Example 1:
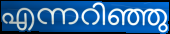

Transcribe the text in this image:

എന്നറിഞ്ഞു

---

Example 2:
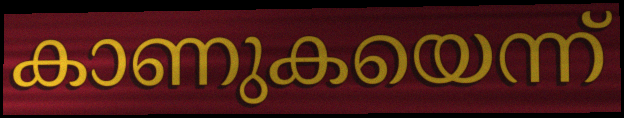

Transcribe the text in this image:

കാണുകയെന്ന്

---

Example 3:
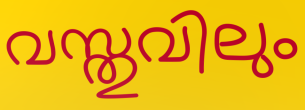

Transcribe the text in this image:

വസ്തുവിലും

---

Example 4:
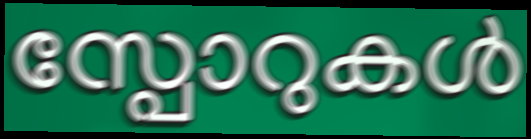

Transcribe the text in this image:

സ്പോറുകൾ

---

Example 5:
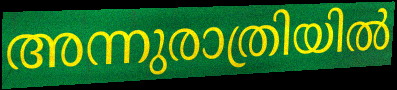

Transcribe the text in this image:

അന്നുരാത്രിയിൽ